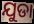
ଯୁଡା